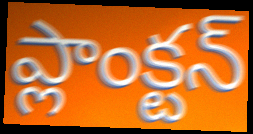
ప్లాంక్టన్